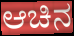
ಆಚಿನ